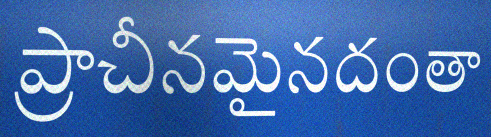
ప్రాచీనమైనదంతా